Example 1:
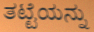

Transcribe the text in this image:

ತಟ್ಟೆಯನ್ನು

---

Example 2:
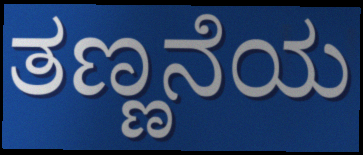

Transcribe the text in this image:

ತಣ್ಣನೆಯ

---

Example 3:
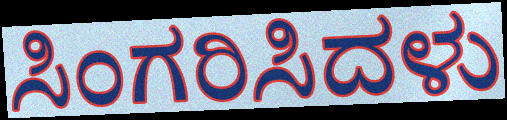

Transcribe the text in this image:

ಸಿಂಗರಿಸಿದಳು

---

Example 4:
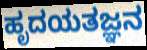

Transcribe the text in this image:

ಹೃದಯತಜ್ಞನ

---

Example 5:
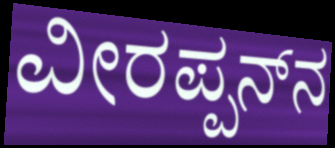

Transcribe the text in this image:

ವೀರಪ್ಪನ್‍ನ